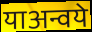
याअन्वये